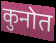
कुनोत